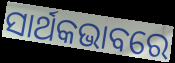
ସାର୍ଥକଭାବରେ